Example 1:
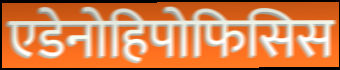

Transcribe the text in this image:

एडेनोहिपोफिसिस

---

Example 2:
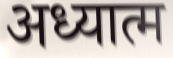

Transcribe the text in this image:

अध्यात्म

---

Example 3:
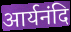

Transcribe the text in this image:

आर्यनंदि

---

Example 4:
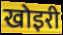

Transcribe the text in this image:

खोइरी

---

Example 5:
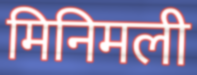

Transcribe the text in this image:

मिनिमली